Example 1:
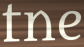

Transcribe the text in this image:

tne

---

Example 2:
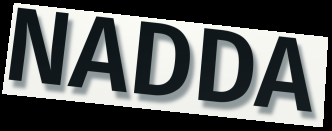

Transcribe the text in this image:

NADDA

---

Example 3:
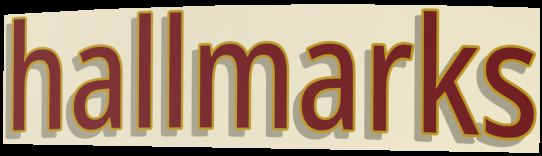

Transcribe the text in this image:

hallmarks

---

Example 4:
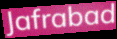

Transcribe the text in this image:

Jafrabad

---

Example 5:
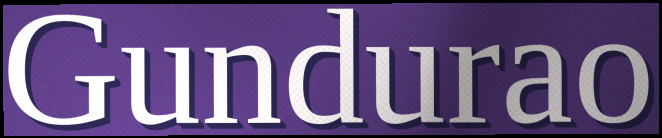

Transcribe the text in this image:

Gundurao